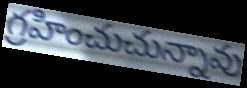
గ్రహించుచున్నావు